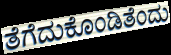
ತೆಗೆದುಕೊಂಡಿತೆಂದು